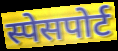
स्पेसपोर्ट